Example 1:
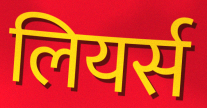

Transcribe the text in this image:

लियर्स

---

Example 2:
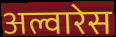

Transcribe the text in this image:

अल्वारेस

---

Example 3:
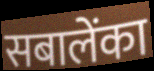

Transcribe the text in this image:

सबालेंका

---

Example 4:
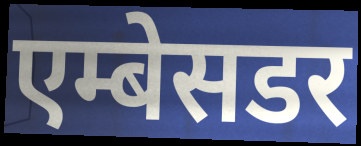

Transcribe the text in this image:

एम्बेसडर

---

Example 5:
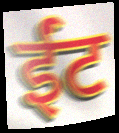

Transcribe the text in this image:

ईंट